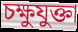
চক্ষুযুক্তা